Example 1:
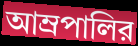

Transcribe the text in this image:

আম্রপালির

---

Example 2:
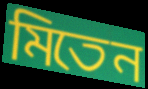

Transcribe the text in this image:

মিতেন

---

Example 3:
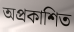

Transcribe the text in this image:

অপ্রকাশিত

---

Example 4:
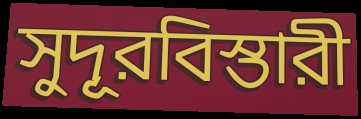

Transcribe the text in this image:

সুদূরবিস্তারী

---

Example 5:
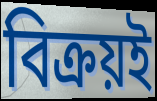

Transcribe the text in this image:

বিক্রয়ই